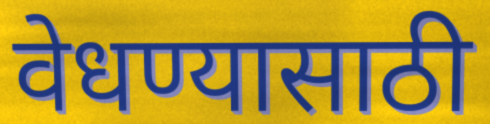
वेधण्यासाठी